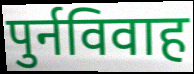
पुर्नविवाह